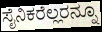
ಸೈನಿಕರೆಲ್ಲರನ್ನೂ